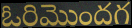
ఓరిమొందగ